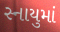
સ્નાયુમાં